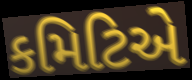
કમિટિએ